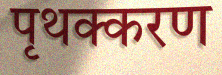
पृथक्करण